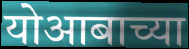
योआबाच्या